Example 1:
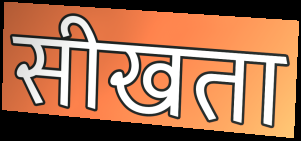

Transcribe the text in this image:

सीखता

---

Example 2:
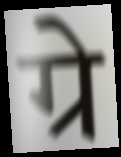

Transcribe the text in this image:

ग्रे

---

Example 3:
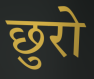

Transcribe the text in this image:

छुरो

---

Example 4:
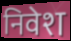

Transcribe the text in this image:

निवेश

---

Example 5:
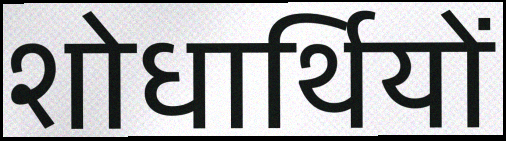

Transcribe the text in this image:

शोधार्थियों